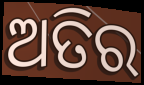
ଅତିର